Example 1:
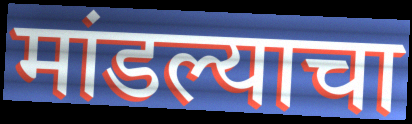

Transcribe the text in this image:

मांडल्याचा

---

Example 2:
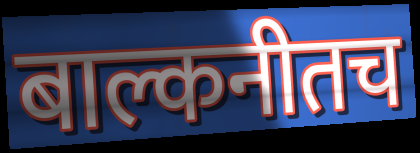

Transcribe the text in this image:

बाल्कनीतच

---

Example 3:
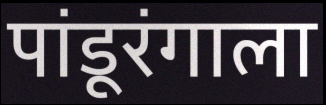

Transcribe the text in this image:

पांडूरंगाला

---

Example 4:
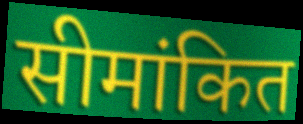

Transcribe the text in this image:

सीमांकित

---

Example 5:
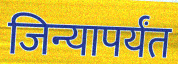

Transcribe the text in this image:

जिन्यापर्यंत